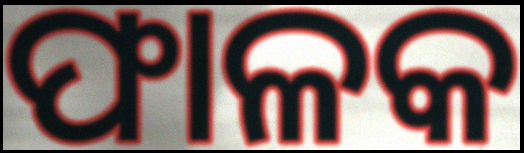
ଫାଳକ